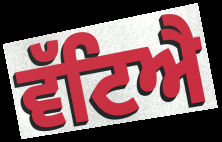
ਵੱਟਿਐ